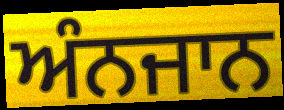
ਅੰਨਜਾਨ